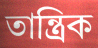
তান্ত্রিক